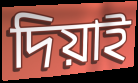
দিয়াই